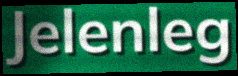
Jelenleg